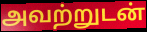
அவற்றுடன்